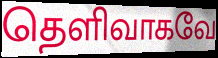
தெளிவாகவே